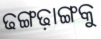
ଢଙ୍ଗଢ଼ାଙ୍ଗକୁ